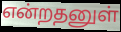
என்றதனுள்